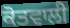
ਕੋਤਵਾਲੀ